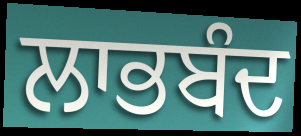
ਲਾਭਬੰਦ